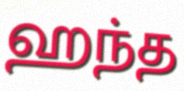
ஹந்த